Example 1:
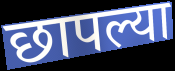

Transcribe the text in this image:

छापल्या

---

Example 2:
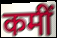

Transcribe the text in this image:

कमीं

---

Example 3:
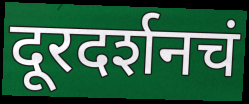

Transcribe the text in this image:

दूरदर्शनचं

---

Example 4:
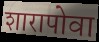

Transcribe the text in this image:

शारापोवा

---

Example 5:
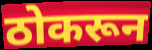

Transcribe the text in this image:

ठोकरून